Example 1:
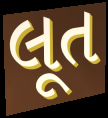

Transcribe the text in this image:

લૂત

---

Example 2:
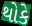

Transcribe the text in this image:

થોકે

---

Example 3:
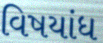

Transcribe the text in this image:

વિષયાંધ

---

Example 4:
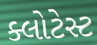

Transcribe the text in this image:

ક્લોટેસ્ટ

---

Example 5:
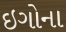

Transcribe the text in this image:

ઇગોના